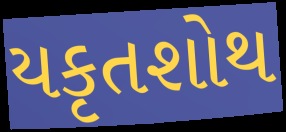
યકૃતશોથ